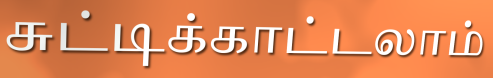
சுட்டிக்காட்டலாம்